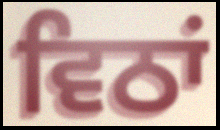
ਵਿਠਾਂ